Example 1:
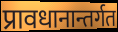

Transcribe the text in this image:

प्रावधानान्तर्गत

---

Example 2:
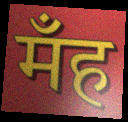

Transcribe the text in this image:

मँह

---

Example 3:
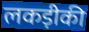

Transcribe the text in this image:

लकड़ीकी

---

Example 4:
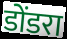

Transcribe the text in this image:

डोंडरा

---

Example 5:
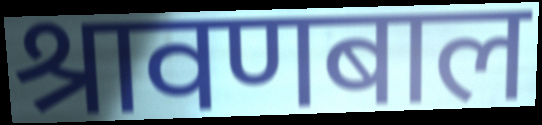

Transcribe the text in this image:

श्रावणबाल